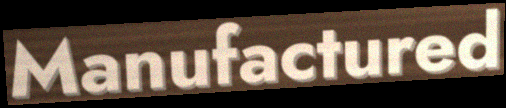
Manufactured